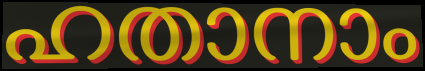
ഹതാനാം